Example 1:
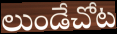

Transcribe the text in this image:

లుండేచోట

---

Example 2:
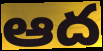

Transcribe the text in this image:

ఆద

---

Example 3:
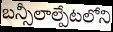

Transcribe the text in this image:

బన్సీలాల్పేటలోని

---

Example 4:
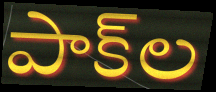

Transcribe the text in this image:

పాక్‌ల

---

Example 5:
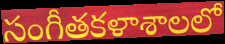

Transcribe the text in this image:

సంగీతకళాశాలలో